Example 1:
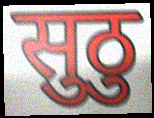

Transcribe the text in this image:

सुठु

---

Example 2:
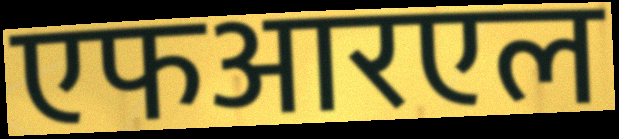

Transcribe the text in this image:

एफआरएल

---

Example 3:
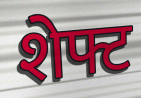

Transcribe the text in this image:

शेफ्ट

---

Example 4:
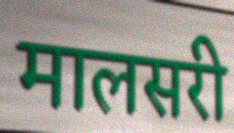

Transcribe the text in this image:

मालसरी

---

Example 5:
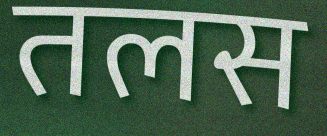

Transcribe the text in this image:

तलस